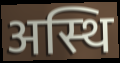
अस्थि